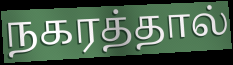
நகரத்தால்